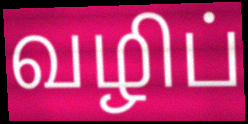
வழிப்